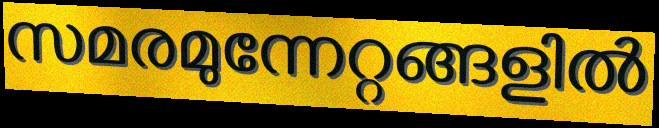
സമരമുന്നേറ്റങ്ങളിൽ